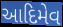
આદિમેવ